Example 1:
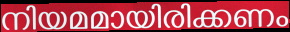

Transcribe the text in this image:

നിയമമായിരിക്കണം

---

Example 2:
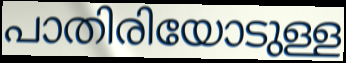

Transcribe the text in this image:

പാതിരിയോടുള്ള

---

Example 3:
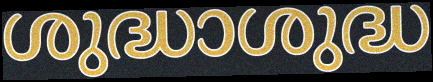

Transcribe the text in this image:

ശുദ്ധാശുദ്ധ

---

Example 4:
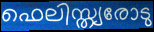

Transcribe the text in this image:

ഫെലിസ്ത്യരോടു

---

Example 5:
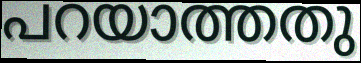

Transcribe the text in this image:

പറയാത്തതു